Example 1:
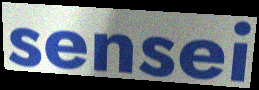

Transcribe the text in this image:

sensei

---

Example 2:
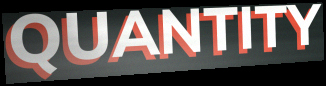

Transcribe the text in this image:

QUANTITY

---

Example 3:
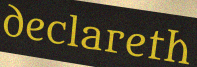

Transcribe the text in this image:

declareth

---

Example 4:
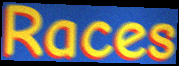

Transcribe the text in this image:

Races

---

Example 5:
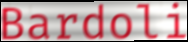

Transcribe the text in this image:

Bardoli